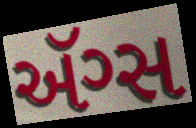
ઍગ્સ